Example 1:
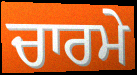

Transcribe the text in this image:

ਚਾਰਮੇ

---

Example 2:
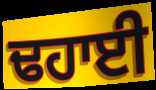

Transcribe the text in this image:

ਢਹਾਈ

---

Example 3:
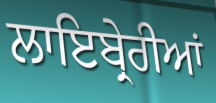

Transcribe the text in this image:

ਲਾਇਬ੍ਰੇਰੀਆਂ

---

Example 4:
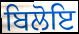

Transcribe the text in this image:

ਬਿਲੋਇ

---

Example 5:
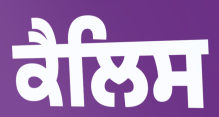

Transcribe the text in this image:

ਕੈਲਿਸ